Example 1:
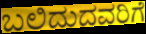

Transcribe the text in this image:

ಬಲಿದುದವರಿಗೆ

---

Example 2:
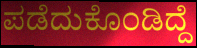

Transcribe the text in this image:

ಪಡೆದುಕೊಂಡಿದ್ದೆ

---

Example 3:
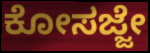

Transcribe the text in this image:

ಕೋಸಜ್ಜೇ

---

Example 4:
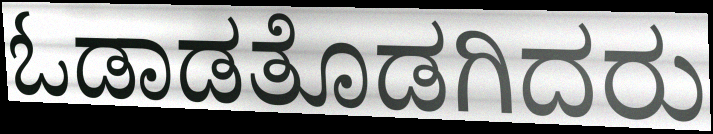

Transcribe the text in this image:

ಓಡಾಡತೊಡಗಿದರು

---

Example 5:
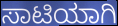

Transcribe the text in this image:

ಸಾಟಿಯಾಗಿ